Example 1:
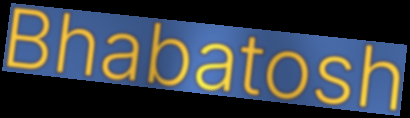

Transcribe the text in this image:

Bhabatosh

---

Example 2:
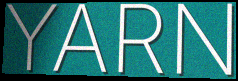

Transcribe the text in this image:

YARN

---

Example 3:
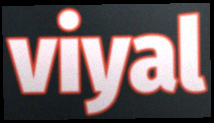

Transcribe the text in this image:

viyal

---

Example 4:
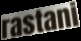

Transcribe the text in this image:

rastani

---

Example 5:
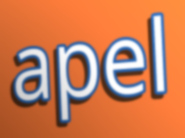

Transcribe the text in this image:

apel